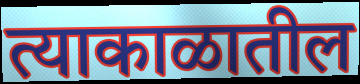
त्याकाळातील